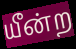
யீன்ற